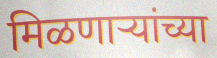
मिळणाऱ्यांच्या